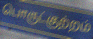
பொருட்குற்றம்